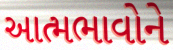
આત્મભાવોને